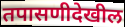
तपासणीदेखील